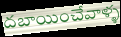
దబాయించేవాళ్ళ